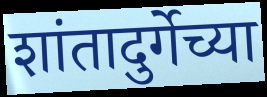
शांतादुर्गेच्या